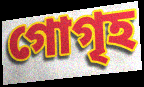
গোগৃহ